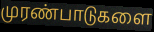
முரண்பாடுகளை